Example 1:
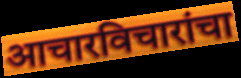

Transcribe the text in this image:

आचारविचारांचा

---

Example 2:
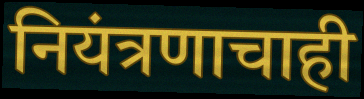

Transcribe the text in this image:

नियंत्रणाचाही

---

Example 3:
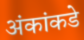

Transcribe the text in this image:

अंकांकडे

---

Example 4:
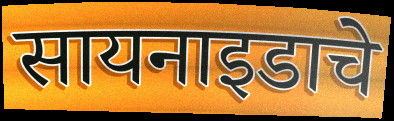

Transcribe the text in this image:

सायनाइडाचे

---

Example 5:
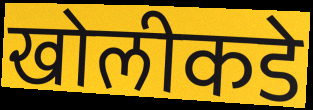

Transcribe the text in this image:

खोलीकडे